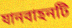
যানবাহনটি